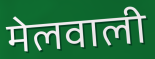
मेलवाली